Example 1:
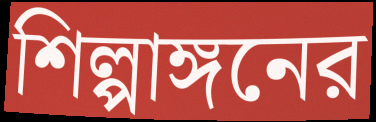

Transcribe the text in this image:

শিল্পাঙ্গনের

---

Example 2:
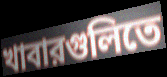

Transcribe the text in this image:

খাবারগুলিতে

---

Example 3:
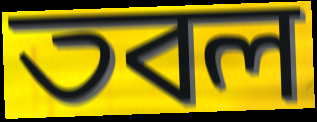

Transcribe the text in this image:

তবল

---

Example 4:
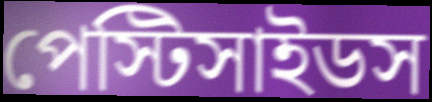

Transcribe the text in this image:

পেস্টিসাইডস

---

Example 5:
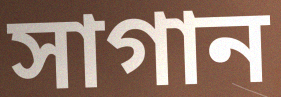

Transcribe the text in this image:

সাগান